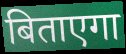
बिताएगा